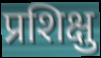
प्रशिक्षु